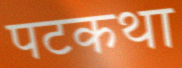
पटकथा